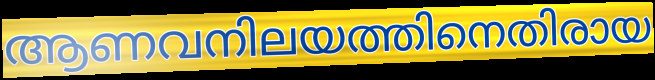
ആണവനിലയത്തിനെതിരായ